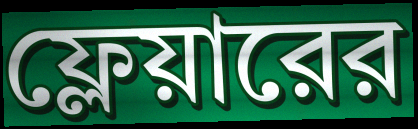
ফ্লেয়ারের